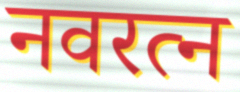
नवरत्न